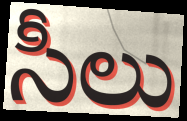
సీలు